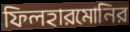
ফিলহারমোনির